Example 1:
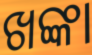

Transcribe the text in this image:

ଖଙ୍କା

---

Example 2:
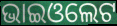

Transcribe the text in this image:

ଭାଇଓଲେଟ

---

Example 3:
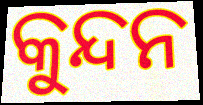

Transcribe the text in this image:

କୁନ୍ଦନ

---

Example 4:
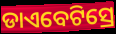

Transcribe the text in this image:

ଡାଏବେଟିସ୍ରେ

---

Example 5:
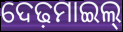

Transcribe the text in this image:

ଦେଢ଼ମାଇଲ୍